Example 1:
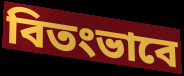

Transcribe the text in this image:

বিতংভাবে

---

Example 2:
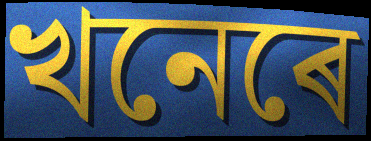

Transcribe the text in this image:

খনেৰে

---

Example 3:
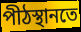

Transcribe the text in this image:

পীঠস্থানতে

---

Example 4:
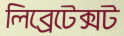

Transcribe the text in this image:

লিব্ৰেটেক্সট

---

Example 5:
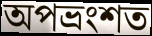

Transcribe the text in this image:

অপভ্ৰংশত